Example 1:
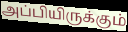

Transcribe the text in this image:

அப்பியிருக்கும்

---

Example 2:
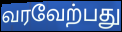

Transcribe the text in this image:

வரவேற்பது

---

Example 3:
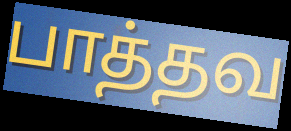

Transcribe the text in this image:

பாத்தவ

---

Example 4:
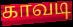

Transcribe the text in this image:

காவடி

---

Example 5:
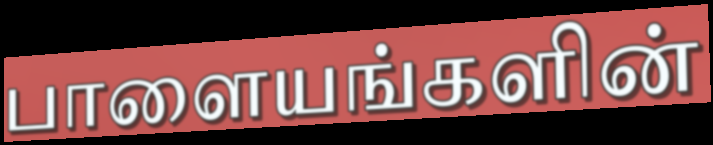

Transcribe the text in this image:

பாளையங்களின்